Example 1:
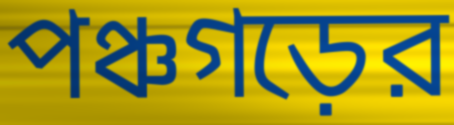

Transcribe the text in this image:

পঞ্চগড়ের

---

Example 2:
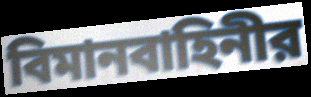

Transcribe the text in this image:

বিমানবাহিনীর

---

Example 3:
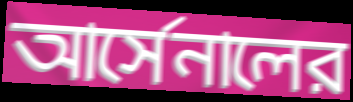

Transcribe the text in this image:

আর্সেনালের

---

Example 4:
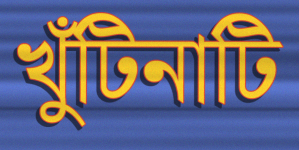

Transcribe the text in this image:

খুঁটিনাটি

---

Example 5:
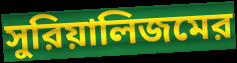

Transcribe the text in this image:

সুরিয়ালিজমের